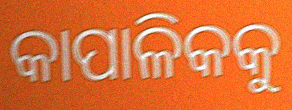
କାପାଳିକକୁ